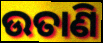
ଉତାଣି